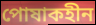
পোষাকহীন